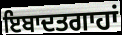
ਇਬਾਦਤਗਾਹਾਂ